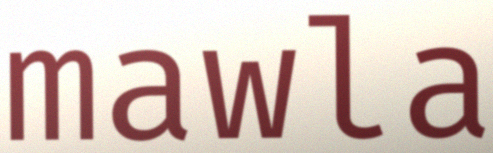
mawla